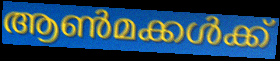
ആൺമക്കൾക്ക്